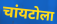
चांयटोला